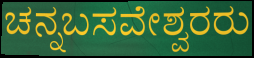
ಚನ್ನಬಸವೇಶ್ವರರು